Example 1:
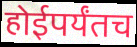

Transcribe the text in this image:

होईपर्यंतच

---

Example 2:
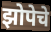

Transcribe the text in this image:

झोपेचे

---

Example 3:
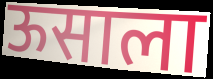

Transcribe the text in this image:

ऊसाला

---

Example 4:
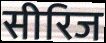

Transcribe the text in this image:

सीरिज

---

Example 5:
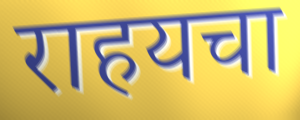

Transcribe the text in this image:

राहयचा